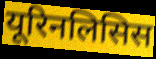
यूरिनलिसिस